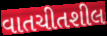
વાતચીતશીલ